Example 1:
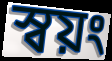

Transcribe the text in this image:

স্বয়ং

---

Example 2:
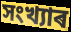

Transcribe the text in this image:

সংখ্যাৰ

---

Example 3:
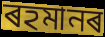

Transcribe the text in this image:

ৰহমানৰ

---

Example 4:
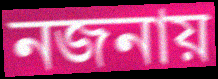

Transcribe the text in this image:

নজনায়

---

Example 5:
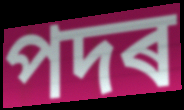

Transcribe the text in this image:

পদৰ